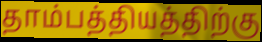
தாம்பத்தியத்திற்கு